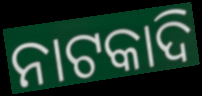
ନାଟକାଦି